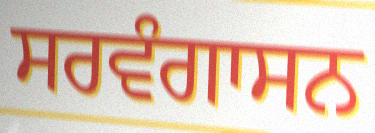
ਸਰਵੰਗਾਸਨ